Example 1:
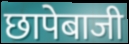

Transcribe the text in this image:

छापेबाजी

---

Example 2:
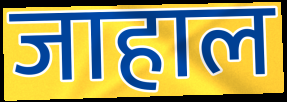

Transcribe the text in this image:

जाहाल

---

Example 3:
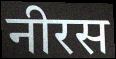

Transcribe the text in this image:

नीरस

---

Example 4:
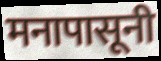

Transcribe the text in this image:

मनापासूनी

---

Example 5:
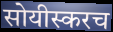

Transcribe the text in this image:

सोयीस्करच